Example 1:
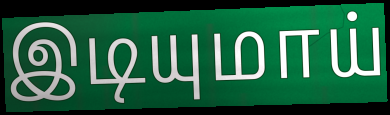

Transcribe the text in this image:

இடியுமாய்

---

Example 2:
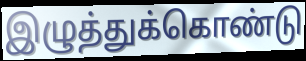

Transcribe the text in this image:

இழுத்துக்கொண்டு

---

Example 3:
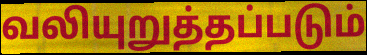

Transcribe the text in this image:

வலியுறுத்தப்படும்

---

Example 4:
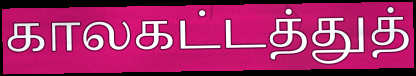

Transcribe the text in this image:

காலகட்டத்துத்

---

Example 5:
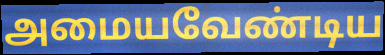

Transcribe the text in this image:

அமையவேண்டிய